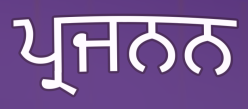
ਪ੍ਰਜਨਨ